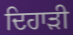
ਦਿਹਾੜੀ